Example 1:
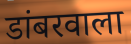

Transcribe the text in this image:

डांबरवाला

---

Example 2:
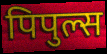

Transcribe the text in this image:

पिपुल्स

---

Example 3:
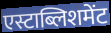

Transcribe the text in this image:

एस्टाब्लिशमेंट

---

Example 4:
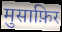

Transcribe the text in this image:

मुसाफ़िर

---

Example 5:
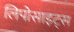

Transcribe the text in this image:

लिपोसाइट्स